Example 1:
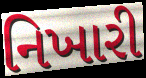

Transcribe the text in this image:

નિખારી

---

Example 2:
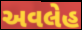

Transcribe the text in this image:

અવલેહ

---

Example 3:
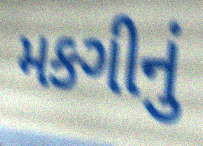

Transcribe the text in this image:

મકગીનું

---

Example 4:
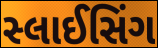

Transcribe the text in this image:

સ્લાઈસિંગ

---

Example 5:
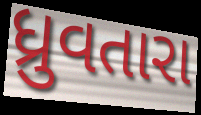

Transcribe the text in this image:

ધ્રુવતારા